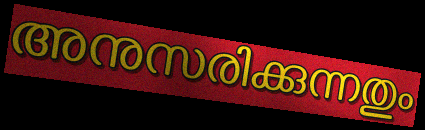
അനുസരിക്കുന്നതും